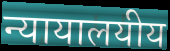
न्यायालयीय